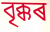
বৃক্কৰ